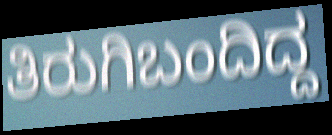
ತಿರುಗಿಬಂದಿದ್ದ